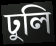
ঢুলি